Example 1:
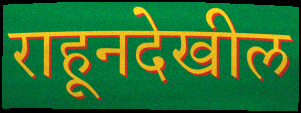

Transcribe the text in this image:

राहूनदेखील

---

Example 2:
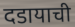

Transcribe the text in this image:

दडायाची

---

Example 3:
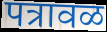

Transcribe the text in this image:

पत्रावळ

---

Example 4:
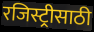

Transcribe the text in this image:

रजिस्ट्रीसाठी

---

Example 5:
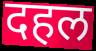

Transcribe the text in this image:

दहल